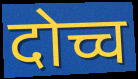
दोच्च